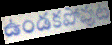
ఉండకపోవుట